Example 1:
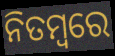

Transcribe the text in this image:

ନିତମ୍ୱରେ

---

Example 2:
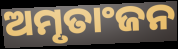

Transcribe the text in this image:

ଅମୃତାଂଜନ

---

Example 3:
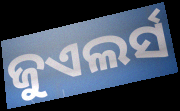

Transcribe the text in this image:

ଜୁଏଲର୍ସ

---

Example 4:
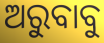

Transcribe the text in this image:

ଅରୁବାବୁ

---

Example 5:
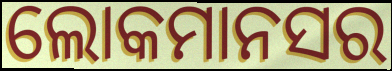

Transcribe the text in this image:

ଲୋକମାନସର